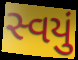
સ્વયું